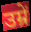
उम्रें